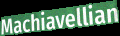
Machiavellian